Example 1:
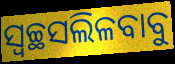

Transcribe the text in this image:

ସ୍ୱଚ୍ଛସଲିଳବାବୁ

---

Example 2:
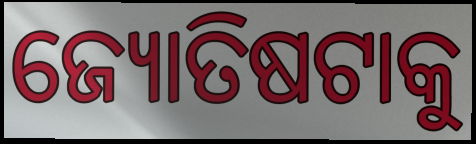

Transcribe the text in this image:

ଜ୍ୟୋତିଷଟାକୁ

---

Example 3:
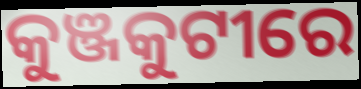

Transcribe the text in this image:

କୁଞ୍ଜକୁଟୀରେ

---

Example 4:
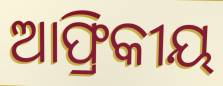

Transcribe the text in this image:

ଆଫ୍ରିକୀୟ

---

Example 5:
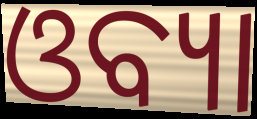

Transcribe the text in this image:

ଓବ୍ୟା